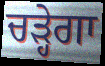
ਚੜ੍ਹੇਗਾ